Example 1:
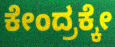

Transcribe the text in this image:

ಕೇಂದ್ರಕ್ಕೇ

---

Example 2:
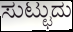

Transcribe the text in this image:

ಸುಟ್ಟುದು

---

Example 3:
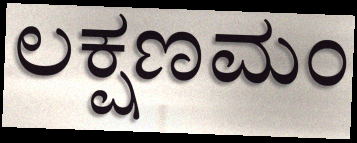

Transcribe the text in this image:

ಲಕ್ಷಣಮಂ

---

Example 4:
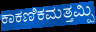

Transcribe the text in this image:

ಕಾಕಣಿಕಮತ್ತಮ್ಪಿ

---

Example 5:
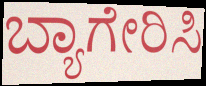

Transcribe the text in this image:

ಬ್ಯಾಗೇರಿಸಿ